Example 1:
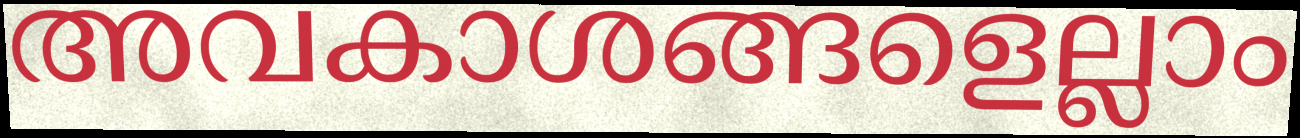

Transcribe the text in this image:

അവകാശങ്ങളെല്ലാം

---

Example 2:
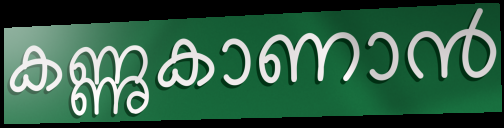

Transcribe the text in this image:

കണ്ണുകാണാൻ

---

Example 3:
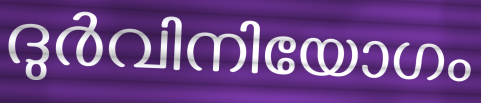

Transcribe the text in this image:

ദുർവിനിയോഗം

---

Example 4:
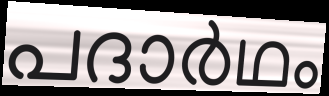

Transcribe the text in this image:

പദാർഥം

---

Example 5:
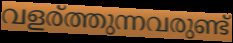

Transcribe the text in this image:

വളര്ത്തുന്നവരുണ്ട്